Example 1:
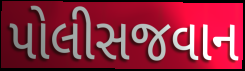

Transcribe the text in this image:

પોલીસજવાન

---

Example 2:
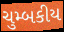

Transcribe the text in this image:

ચુમ્બકીય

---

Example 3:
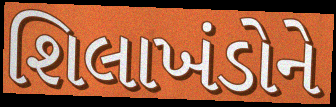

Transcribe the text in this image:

શિલાખંડોને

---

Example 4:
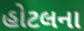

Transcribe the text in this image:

હોટલના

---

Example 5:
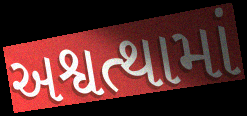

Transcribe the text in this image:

અશ્વત્થામાં